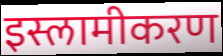
इस्लामीकरण